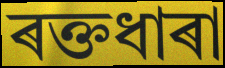
ৰক্তধাৰা